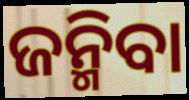
ଜନ୍ମିବା